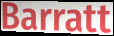
Barratt